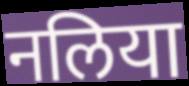
नलिया